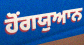
ਹੋਂਗਯੁਆਨ